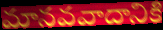
మానవవాదానికి